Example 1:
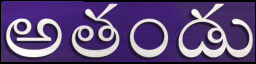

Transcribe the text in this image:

అతండు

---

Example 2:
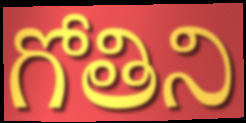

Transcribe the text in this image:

గోతిని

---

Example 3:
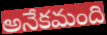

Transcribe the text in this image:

అనేకమంది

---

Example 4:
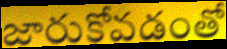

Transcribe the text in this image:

జారుకోవడంతో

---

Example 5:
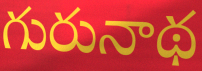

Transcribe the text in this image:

గురునాథ